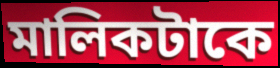
মালিকটাকে